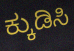
ಕ್ಕುಡಿಸಿ